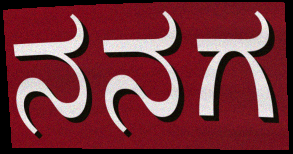
ನನಗ